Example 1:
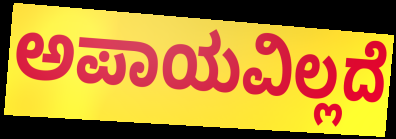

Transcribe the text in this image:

ಅಪಾಯವಿಲ್ಲದೆ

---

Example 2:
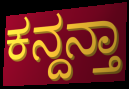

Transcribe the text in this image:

ಕನ್ದನ್ತಾ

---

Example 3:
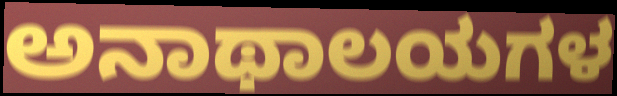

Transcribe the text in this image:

ಅನಾಥಾಲಯಗಳ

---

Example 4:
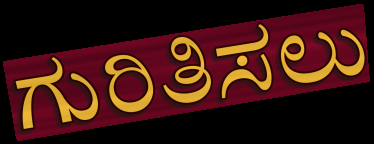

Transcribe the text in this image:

ಗುರಿತಿಸಲು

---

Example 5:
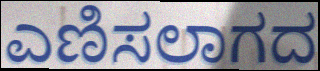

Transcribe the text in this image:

ಎಣಿಸಲಾಗದ